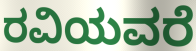
ರವಿಯವರೆ